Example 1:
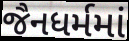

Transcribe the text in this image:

જૈનધર્મમાં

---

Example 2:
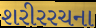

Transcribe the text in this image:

શરીરરચના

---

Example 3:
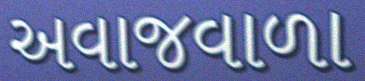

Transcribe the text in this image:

અવાજવાળા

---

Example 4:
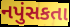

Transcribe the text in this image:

નપુંસકતા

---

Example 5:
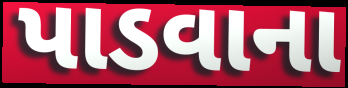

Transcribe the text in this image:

પાડવાના